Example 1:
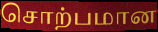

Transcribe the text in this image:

சொற்பமான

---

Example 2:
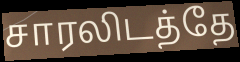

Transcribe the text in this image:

சாரலிடத்தே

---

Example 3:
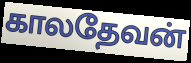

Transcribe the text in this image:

காலதேவன்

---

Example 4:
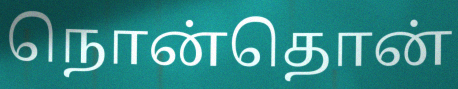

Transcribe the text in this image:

நொன்தொன்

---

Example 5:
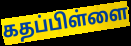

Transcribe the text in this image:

கதப்பிள்ளை